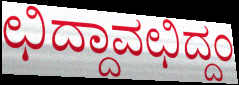
ಛಿದ್ದಾವಛಿದ್ದಂ